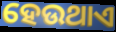
ହେଉଥାଏ